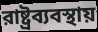
রাষ্ট্রব্যবস্থায়